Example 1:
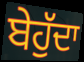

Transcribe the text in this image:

ਬੇਹੁੱਦਾ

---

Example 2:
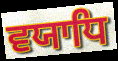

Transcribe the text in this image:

ਵਯਾਧਿ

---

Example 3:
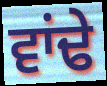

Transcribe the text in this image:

ਵਾਂਢੇ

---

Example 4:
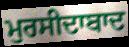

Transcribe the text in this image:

ਮੁਰਸੀਦਾਬਾਦ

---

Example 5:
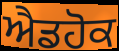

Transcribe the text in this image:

ਐਡਹੋਕ